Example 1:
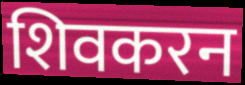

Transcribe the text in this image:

शिवकरन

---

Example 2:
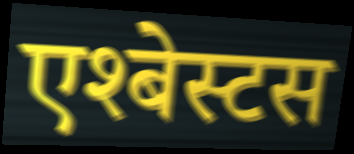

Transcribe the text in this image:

एश्बेस्टस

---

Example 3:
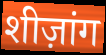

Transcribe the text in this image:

शीज़ांग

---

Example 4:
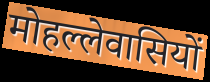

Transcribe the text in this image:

मोहल्लेवासियों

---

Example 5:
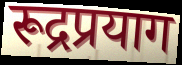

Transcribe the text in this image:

रूद्रप्रयाग